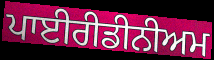
ਪਾਈਰੀਡੀਨੀਅਮ